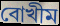
বোখীম